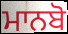
ਮਾਨਬੋ